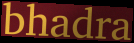
bhadra